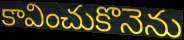
కావించుకొనెను